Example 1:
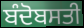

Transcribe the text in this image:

ਬੰਦੋਬਸਤੀ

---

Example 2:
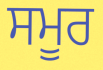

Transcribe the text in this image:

ਸਮੂਰ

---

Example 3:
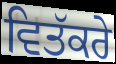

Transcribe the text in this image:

ਵਿਤੱਕਰੇ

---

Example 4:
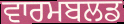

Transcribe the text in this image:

ਵਾਰਮਬਲਡ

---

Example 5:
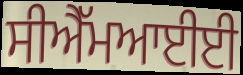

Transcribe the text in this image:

ਸੀਐੱਮਆਈਈ